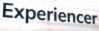
Experiencer